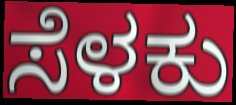
ಸೆಳಕು